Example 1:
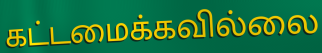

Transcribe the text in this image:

கட்டமைக்கவில்லை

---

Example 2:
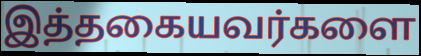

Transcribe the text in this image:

இத்தகையவர்களை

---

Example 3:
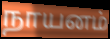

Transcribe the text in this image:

நாயனம்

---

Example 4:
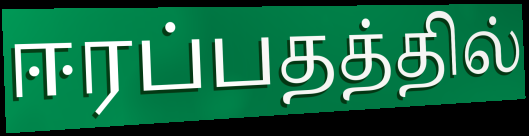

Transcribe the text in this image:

ஈரப்பதத்தில்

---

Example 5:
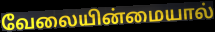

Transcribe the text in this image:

வேலையின்மையால்